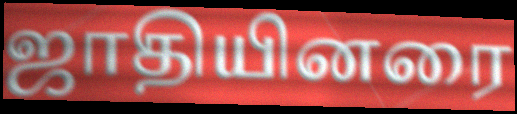
ஜாதியினரை